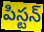
పిస్టన్